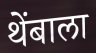
थेंबाला